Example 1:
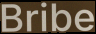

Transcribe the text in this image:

Bribe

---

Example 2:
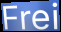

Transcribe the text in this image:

Frei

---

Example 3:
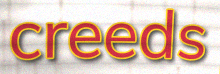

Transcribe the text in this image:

creeds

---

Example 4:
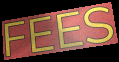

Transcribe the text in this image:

FEES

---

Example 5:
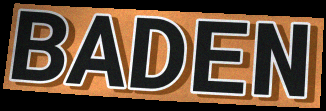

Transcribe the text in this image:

BADEN